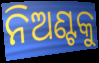
ନିଅଣ୍ଟକୁ